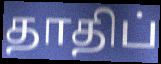
தாதிப்